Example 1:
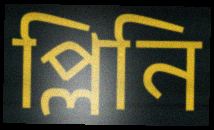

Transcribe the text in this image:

প্লিনি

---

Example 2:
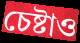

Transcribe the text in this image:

চেষ্টাও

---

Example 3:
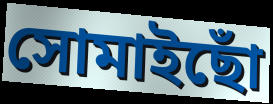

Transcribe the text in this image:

সোমাইছোঁ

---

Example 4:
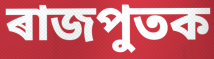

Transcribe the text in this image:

ৰাজপুতক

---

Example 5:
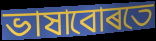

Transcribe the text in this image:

ভাষাবোৰতে